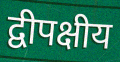
द्वीपक्षीय